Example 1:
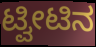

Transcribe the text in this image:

ಟ್ವೀಟಿನ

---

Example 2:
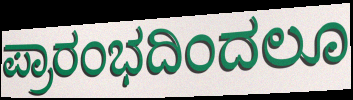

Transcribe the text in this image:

ಪ್ರಾರಂಭದಿಂದಲೂ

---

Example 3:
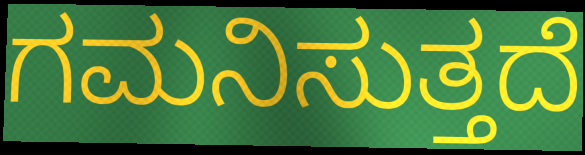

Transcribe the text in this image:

ಗಮನಿಸುತ್ತದೆ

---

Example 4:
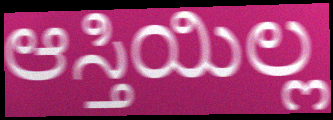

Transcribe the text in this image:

ಆಸ್ತಿಯಿಲ್ಲ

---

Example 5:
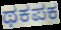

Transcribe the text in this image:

ಥಕಪಕ